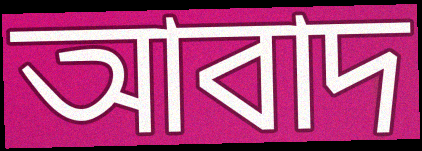
আবাদ